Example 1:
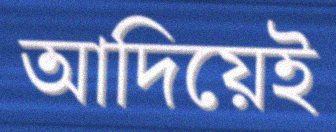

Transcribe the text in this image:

আদিয়েই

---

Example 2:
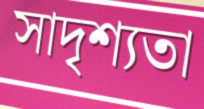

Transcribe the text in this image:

সাদৃশ্যতা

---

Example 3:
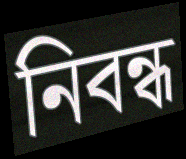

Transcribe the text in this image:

নিবন্ধ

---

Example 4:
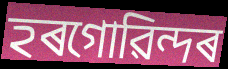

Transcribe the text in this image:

হৰগোৱিন্দৰ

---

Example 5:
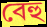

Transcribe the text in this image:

বেহু